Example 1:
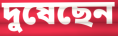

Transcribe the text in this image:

দুষেছেন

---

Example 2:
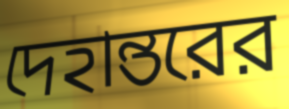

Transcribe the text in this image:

দেহান্তরের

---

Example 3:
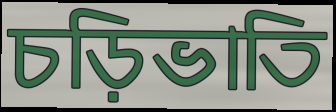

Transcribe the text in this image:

চড়িভাতি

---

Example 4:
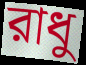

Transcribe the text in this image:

রাধু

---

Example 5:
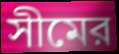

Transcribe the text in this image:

সীমের